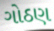
ગોઠણ